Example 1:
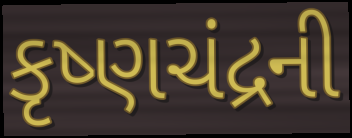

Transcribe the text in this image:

કૃષ્ણચંદ્રની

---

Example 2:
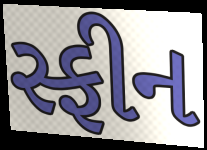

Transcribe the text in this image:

સ્ફીન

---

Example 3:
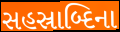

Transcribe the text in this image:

સહસ્રાબ્દિના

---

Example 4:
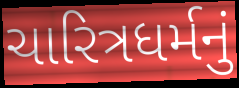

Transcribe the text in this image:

ચારિત્રધર્મનું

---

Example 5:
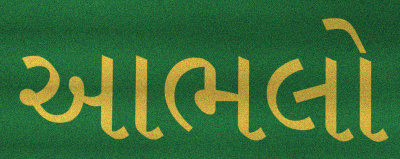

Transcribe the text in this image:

આભલો